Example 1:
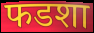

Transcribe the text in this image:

फडशा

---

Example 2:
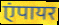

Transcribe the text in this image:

एंपायर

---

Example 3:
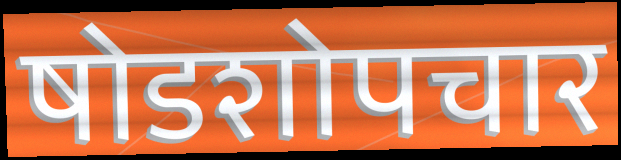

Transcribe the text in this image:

षोडशोपचार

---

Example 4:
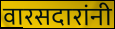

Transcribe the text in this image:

वारसदारांनी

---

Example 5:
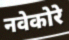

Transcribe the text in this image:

नवेकोरे